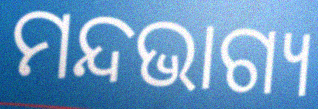
ମନ୍ଦଭାଗ୍ୟ